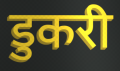
डुकरी